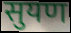
सुयण